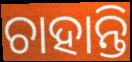
ଚାହାନ୍ତି